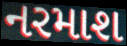
નરમાશ